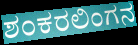
ಶಂಕರಲಿಂಗನ